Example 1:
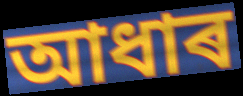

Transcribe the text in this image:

আধাৰ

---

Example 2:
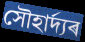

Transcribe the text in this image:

সৌহাৰ্দ্যৰ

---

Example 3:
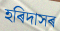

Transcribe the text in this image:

হৰিদাসৰ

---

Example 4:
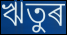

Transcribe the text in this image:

ঋতুৰ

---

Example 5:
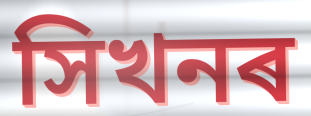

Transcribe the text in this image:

সিখনৰ